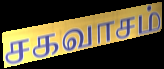
சகவாசம்